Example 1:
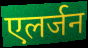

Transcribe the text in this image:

एलर्जन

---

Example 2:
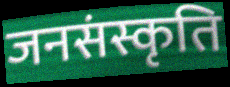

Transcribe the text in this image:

जनसंस्कृति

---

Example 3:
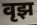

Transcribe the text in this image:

वृझ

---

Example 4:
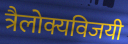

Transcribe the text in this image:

त्रैलोक्यविजयी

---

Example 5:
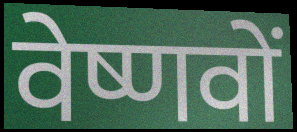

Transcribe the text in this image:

वेष्णवों